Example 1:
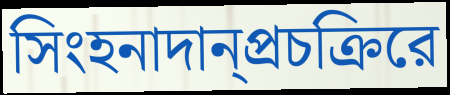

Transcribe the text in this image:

সিংহনাদান্প্রচক্রিরে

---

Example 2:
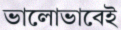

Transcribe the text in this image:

ভালোভাবেই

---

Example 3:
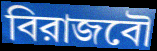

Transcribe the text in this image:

বিরাজবৌ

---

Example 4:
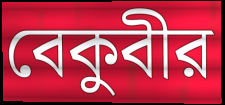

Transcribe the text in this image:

বেকুবীর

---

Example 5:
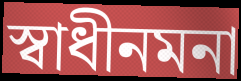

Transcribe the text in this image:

স্বাধীনমনা